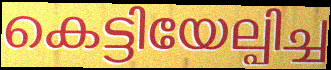
കെട്ടിയേല്പിച്ച